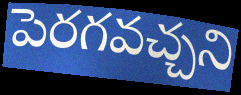
పెరగవచ్చని